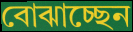
বোঝাচ্ছেন